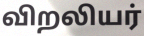
விறலியர்